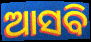
ଆସବି